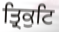
ਤ੍ਰਿਕੁਟਿ